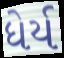
ધેર્ય